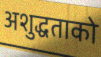
अशुद्धताको